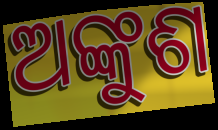
ଅଙ୍କୁଶ